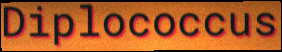
Diplococcus